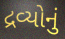
દ્રવ્યોનું